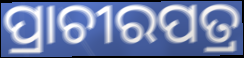
ପ୍ରାଚୀରପତ୍ର